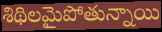
శిథిలమైపోతున్నాయి